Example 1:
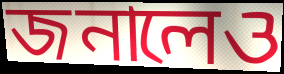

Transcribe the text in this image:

জনালেও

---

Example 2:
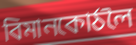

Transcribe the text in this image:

বিমানকোঠলৈ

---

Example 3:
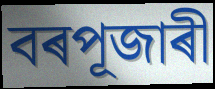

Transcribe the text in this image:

বৰপূজাৰী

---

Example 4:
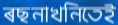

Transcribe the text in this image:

ৰছনাখনিতেই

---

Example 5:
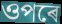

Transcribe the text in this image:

ওপৰে